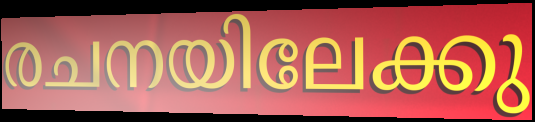
രചനയിലേക്കു